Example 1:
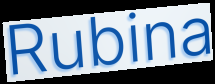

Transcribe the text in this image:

Rubina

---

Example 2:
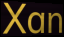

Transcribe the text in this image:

Xan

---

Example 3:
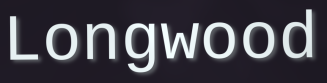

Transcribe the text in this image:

Longwood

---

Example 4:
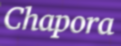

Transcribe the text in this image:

Chapora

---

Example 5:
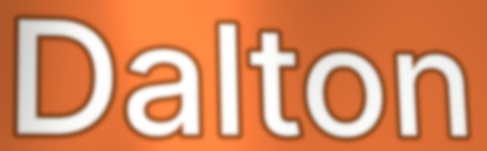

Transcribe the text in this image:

Dalton